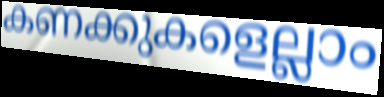
കണക്കുകളെല്ലാം